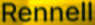
Rennell